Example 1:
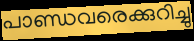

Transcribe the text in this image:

പാണ്ഡവരെക്കുറിച്ചു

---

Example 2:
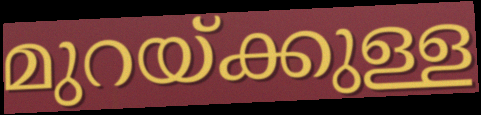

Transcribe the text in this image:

മുറയ്ക്കുള്ള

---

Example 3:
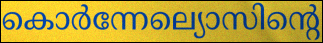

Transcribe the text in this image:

കൊർന്നേല്യൊസിന്റെ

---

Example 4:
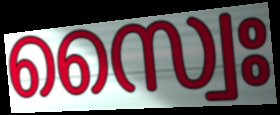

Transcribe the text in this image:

സ്വൈഃ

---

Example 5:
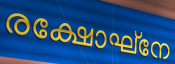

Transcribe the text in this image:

രക്ഷോഘ്നേ